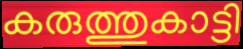
കരുത്തുകാട്ടി